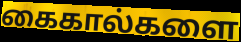
கைகால்களை